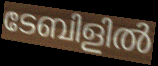
ടേബിളിൽ